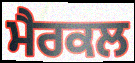
ਮੈਰਕਲ